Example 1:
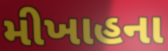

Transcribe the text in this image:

મીખાહના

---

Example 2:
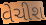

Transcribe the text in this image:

વેચીશ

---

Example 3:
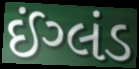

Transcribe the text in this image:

ઈંગ્લંડ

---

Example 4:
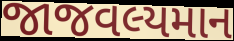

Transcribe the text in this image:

જાજવલ્યમાન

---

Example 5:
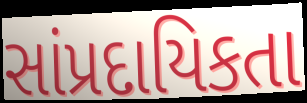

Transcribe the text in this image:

સાંપ્રદાયિકતા